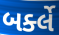
બર્ક્લે